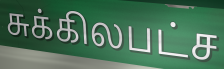
சுக்கிலபட்ச